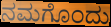
ನಮಗೊಂದು